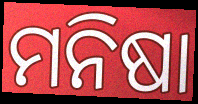
ମନିଷା